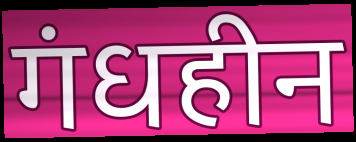
गंधहीन